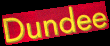
Dundee